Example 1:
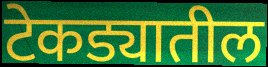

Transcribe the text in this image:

टेकड्यातील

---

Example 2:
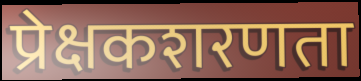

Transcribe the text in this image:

प्रेक्षकशरणता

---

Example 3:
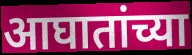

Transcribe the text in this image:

आघातांच्या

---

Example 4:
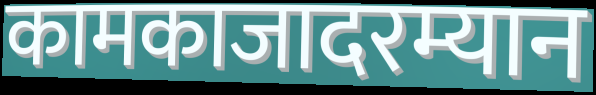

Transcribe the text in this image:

कामकाजादरम्यान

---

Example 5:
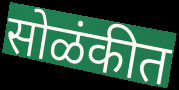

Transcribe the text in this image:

सोळंकीत